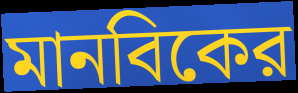
মানবিকের